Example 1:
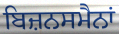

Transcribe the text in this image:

ਬਿਜ਼ਨਸਮੈਨਾਂ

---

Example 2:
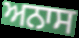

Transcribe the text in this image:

ਅਨਾਸ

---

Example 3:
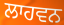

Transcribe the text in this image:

ਲਾਹਵਨ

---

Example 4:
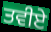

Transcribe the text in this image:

ਤਵੀਏ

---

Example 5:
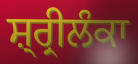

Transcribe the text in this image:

ਸ਼੍ਰ੍ਰੀਲੰਕਾ